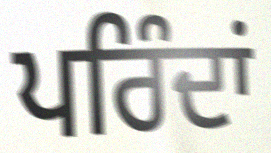
ਪਰਿੰਦਾਂ